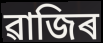
ৱাজিৰ